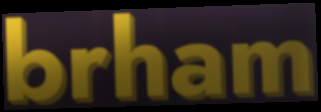
brham